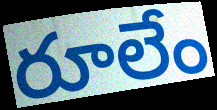
రూలేం